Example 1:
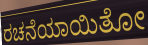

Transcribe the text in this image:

ರಚನೆಯಾಯಿತೋ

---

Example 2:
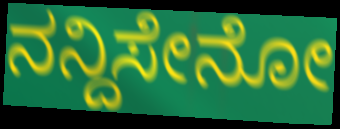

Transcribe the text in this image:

ನನ್ದಿಸೇನೋ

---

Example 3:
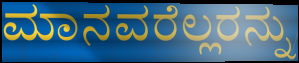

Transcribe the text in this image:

ಮಾನವರೆಲ್ಲರನ್ನು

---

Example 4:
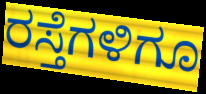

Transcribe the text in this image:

ರಸ್ತೆಗಳಿಗೂ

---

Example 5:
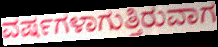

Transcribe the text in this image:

ವರ್ಷಗಳಾಗುತ್ತಿರುವಾಗ